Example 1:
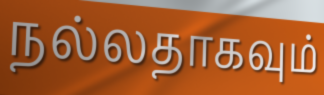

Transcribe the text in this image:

நல்லதாகவும்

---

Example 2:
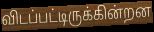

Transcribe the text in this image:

விடப்பட்டிருக்கின்றன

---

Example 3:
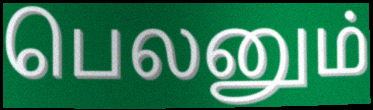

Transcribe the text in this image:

பெலனும்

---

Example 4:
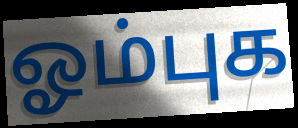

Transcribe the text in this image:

ஓம்புக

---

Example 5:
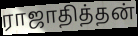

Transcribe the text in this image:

ராஜாதித்தன்